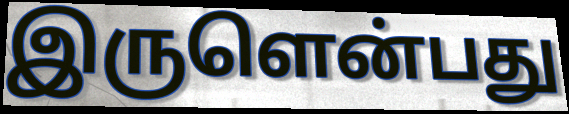
இருளென்பது